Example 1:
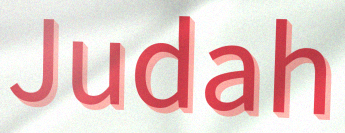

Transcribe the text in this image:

Judah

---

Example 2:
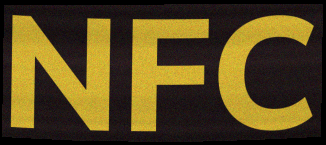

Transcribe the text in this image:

NFC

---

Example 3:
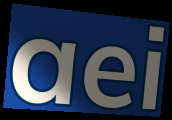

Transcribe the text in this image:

aei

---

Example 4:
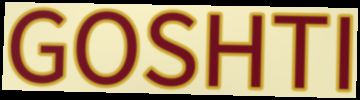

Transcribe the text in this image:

GOSHTI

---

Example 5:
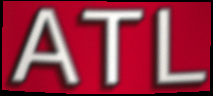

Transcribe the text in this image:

ATL